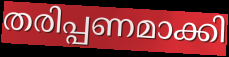
തരിപ്പണമാക്കി